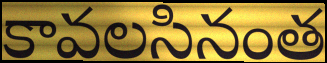
కావలసినంత